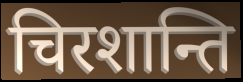
चिरशान्ति